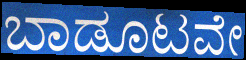
ಬಾಡೂಟವೇ